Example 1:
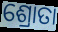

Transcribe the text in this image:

ଶ୍ରୋତା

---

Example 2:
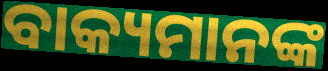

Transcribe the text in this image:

ବାକ୍ୟମାନଙ୍କ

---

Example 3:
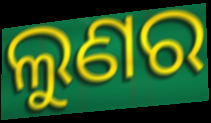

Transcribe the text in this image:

ଲୁଣର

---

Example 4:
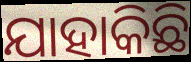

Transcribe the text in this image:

ଯାହାକିଛି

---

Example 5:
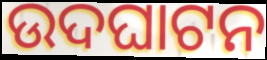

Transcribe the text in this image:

ଉଦଘାଟନ